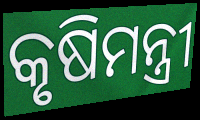
କୃଷିମନ୍ତ୍ରୀ